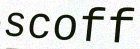
scoff